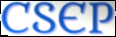
CSEP